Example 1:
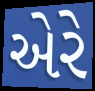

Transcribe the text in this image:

એરે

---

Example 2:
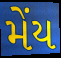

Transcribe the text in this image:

મેંય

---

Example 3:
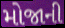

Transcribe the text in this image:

મોજાની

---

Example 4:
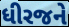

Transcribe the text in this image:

ધીરજને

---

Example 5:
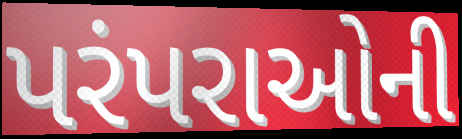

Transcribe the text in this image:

પરંપરાઓની